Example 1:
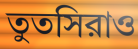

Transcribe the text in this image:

তুতসিরাও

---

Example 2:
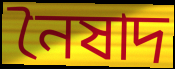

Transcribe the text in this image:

নৈষাদ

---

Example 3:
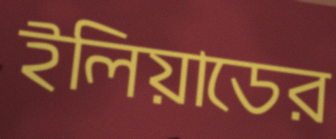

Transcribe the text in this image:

ইলিয়াডের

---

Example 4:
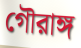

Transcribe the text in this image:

গৌরাঙ্গ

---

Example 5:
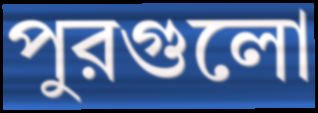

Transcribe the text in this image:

পুরগুলো